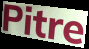
Pitre